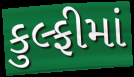
કુલ્ફીમાં